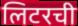
लिटरची